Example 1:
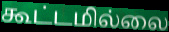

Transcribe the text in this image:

கூட்டமில்லை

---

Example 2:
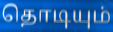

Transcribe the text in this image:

தொடியும்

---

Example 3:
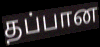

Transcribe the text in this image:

தப்பான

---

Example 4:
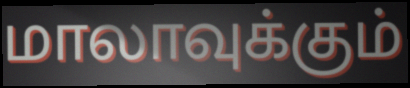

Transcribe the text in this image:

மாலாவுக்கும்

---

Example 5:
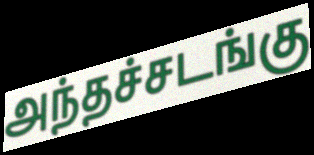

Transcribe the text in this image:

அந்தச்சடங்கு